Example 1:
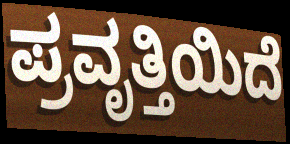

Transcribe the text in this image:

ಪ್ರವೃತ್ತಿಯಿದೆ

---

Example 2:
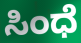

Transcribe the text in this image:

ಸಿಂಧೆ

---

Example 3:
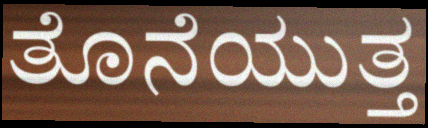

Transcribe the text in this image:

ತೊನೆಯುತ್ತ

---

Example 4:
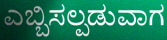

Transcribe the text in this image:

ಎಬ್ಬಿಸಲ್ಪಡುವಾಗ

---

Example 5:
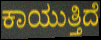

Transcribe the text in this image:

ಕಾಯುತ್ತಿದೆ